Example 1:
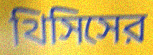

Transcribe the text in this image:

থিসিসের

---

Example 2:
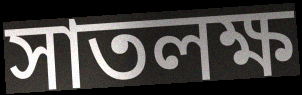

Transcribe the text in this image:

সাতলক্ষ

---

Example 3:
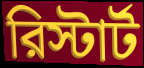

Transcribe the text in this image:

রিস্টার্ট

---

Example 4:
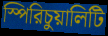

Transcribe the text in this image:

স্পিরিচুয়ালিটি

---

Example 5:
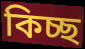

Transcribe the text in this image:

কিচ্ছ